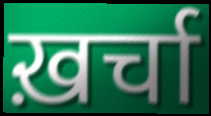
ख़र्चा